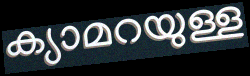
ക്യാമറയുള്ള